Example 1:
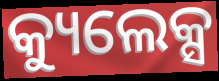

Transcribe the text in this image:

କ୍ୟୁଲେକ୍ସ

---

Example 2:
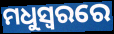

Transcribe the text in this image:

ମଧୁସ୍ୱରରେ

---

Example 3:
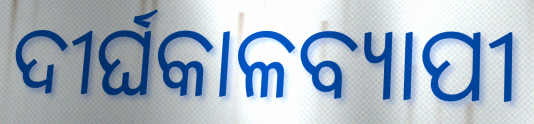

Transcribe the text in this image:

ଦୀର୍ଘକାଳବ୍ୟାପୀ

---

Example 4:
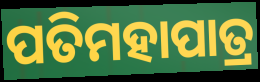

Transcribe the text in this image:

ପତିମହାପାତ୍ର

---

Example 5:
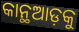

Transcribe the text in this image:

କାନ୍ଥଆଡ଼କୁ